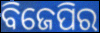
ବିଜେପିର